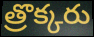
త్రొక్కరు